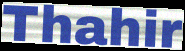
Thahir